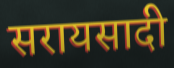
सरायसादी